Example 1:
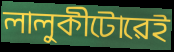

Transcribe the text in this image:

লালুকীটোৱেই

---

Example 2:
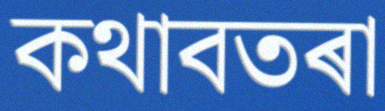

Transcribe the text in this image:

কথাবতৰা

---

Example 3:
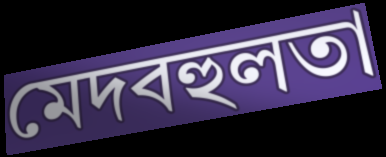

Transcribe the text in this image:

মেদবহুলতা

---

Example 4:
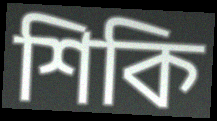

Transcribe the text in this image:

শিকি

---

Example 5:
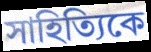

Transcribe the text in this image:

সাহিত্যিকে